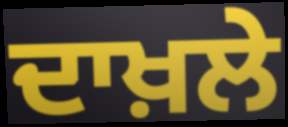
ਦਾਖ਼ਲੇ